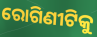
ରୋଗିଣୀଟିକୁ